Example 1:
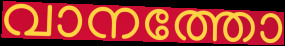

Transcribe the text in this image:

വാനത്തോ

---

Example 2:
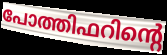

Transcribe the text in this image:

പോത്തിഫറിന്റെ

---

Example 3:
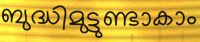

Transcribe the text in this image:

ബുദ്ധിമുട്ടുണ്ടാകാം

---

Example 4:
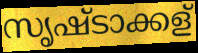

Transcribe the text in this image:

സൃഷ്ടാക്കള്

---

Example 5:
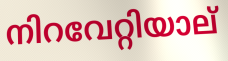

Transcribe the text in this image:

നിറവേറ്റിയാല്